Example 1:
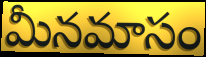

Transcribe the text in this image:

మీనమాసం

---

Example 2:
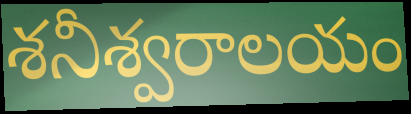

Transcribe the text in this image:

శనీశ్వరాలయం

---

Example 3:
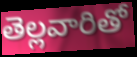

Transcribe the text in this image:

తెల్లవారితో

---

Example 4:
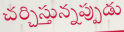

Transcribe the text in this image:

చర్చిస్తున్నప్పుడు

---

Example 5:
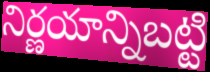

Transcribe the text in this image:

నిర్ణయాన్నిబట్టి